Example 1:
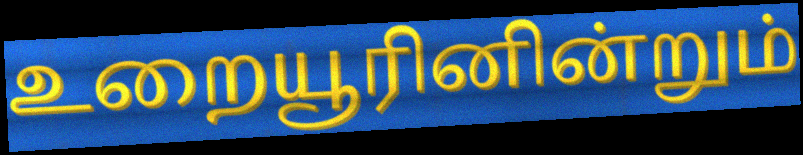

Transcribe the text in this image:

உறையூரினின்றும்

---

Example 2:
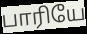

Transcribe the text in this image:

பாரியே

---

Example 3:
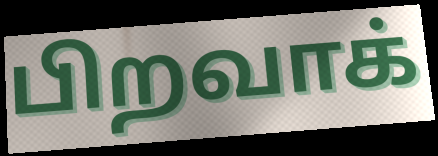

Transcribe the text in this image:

பிறவாக்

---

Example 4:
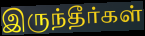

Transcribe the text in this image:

இருந்தீர்கள்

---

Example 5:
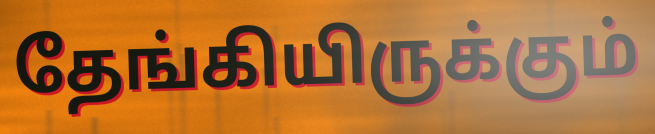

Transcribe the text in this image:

தேங்கியிருக்கும்